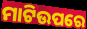
ମାଟିଉପରେ